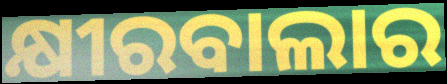
କ୍ଷୀରବାଲାର